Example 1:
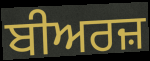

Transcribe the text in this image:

ਬੀਅਰਜ਼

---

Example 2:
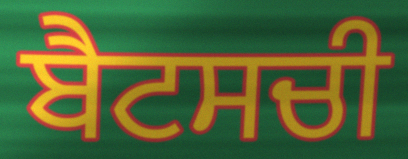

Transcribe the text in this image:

ਬੈਟਸਚੀ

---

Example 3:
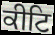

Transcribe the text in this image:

ਕੀਟਿ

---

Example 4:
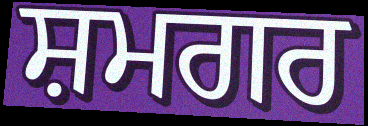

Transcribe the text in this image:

ਸ਼ਮਗਰ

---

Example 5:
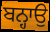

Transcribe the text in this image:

ਬਨ੍ਹਾਉ